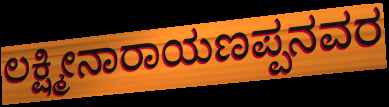
ಲಕ್ಷ್ಮೀನಾರಾಯಣಪ್ಪನವರ